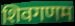
शिवगणम